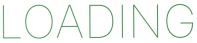
LOADING